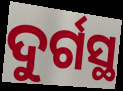
ଦୁର୍ଗସ୍ଥ